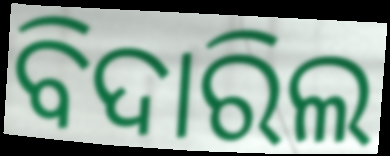
ବିଦାରିଲ